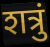
शत्रुं